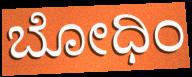
ಬೋಧಿಂ